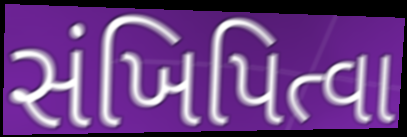
સંખિપિત્વા